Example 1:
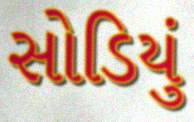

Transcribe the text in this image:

સોડિયું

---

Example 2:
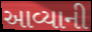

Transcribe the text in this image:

આવ્યાની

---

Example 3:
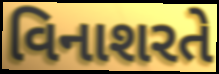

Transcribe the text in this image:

વિનાશરતે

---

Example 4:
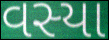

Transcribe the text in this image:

વસ્યા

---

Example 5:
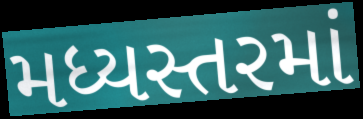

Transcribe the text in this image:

મધ્યસ્તરમાં